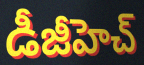
డీజీహెచ్